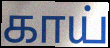
காய்